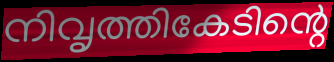
നിവൃത്തികേടിന്റെ